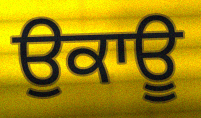
ਉਕਾਊ